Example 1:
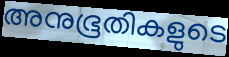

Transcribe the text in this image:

അനുഭൂതികളുടെ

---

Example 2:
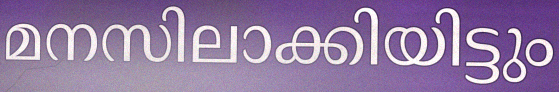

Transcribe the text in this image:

മനസിലാക്കിയിട്ടും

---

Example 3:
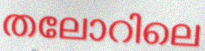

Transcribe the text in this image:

തലോറിലെ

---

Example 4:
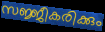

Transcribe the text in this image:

സജ്ജീകരിക്കും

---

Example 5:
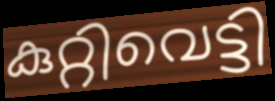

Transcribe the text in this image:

കുറ്റിവെട്ടി